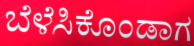
ಬೆಳೆಸಿಕೊಂಡಾಗ